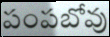
పంపబోవు